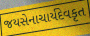
જયસેનાચાર્યદેવકૃત